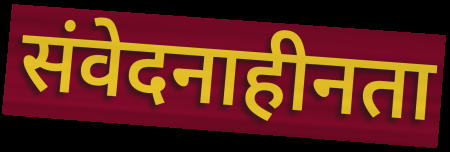
संवेदनाहीनता